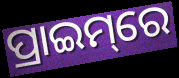
ପ୍ରାଇମ୍‌ରେ